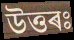
উত্তৰঃ